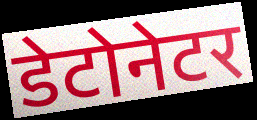
डेटोनेटर